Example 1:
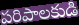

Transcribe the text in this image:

పరిపాలకుడి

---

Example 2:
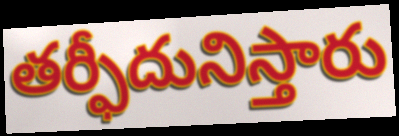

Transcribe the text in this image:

తర్ఫీదునిస్తారు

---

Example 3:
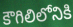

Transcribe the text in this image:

కౌగిలిలోనికి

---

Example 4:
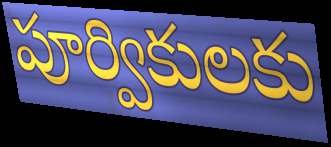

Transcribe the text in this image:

పూర్వికులకు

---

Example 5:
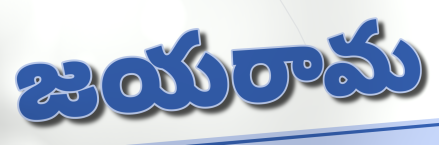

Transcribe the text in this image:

జయరామ